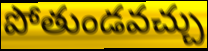
పోతుండవచ్చు